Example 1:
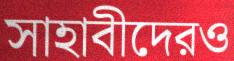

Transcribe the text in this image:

সাহাবীদেরও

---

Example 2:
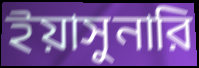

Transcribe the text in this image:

ইয়াসুনারি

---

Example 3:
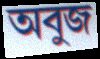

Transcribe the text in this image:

অবুজ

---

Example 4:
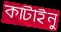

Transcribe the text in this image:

কাটাইনু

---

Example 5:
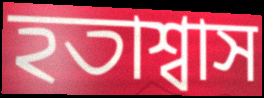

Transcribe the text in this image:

হতাশ্বাস